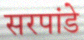
सरपांडे